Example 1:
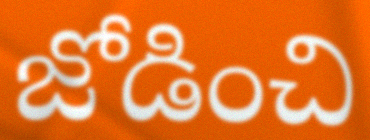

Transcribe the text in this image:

జోడించి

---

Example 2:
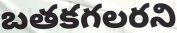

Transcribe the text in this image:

బతకగలరని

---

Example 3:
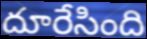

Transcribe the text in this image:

దూరేసింది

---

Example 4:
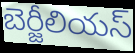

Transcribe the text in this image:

బెర్జీలియస్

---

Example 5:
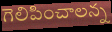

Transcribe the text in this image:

గెలిపించాలన్న